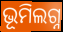
ଭୂମିଲଗ୍ନ